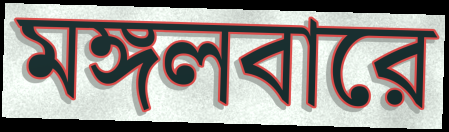
মঙ্গলবারে